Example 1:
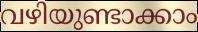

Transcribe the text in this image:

വഴിയുണ്ടാക്കാം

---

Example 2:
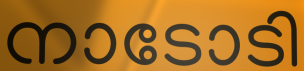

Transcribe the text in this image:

നാടോടി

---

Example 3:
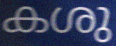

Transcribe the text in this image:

കശു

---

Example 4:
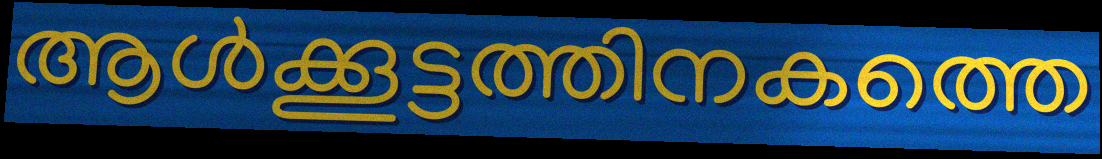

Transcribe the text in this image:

ആൾക്കൂട്ടത്തിനകത്തെ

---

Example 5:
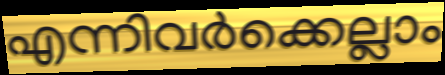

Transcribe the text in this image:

എന്നിവർക്കെല്ലാം